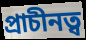
প্ৰাচীনত্ব